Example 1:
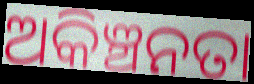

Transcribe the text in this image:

ଅକିଞ୍ଚନତା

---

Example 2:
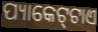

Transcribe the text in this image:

ପ୍ୟାକେଟ୍‌ଟାଏ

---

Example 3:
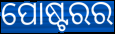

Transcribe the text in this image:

ପୋଷ୍ଟରର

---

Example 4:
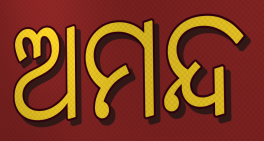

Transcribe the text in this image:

ଅମନ୍ଦ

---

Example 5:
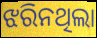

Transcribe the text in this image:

ଝରିନଥିଲା